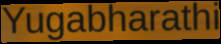
Yugabharathi